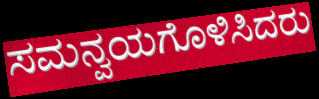
ಸಮನ್ವಯಗೊಳಿಸಿದರು